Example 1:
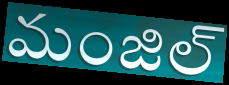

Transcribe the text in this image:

మంజిల్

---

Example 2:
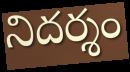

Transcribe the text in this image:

నిదర్శం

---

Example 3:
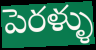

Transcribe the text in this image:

పెరళ్ళు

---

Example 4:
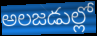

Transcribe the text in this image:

అలజడుల్లో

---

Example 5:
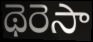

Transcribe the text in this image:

థెరెసా